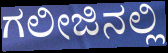
ಗಲೀಜಿನಲ್ಲಿ